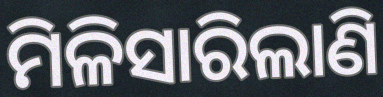
ମିଳିସାରିଲାଣି